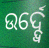
ଉର୍ଦ୍ଦ୍ୱେ